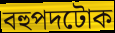
বহুপদটোক